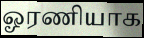
ஓரணியாக